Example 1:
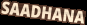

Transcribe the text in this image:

SAADHANA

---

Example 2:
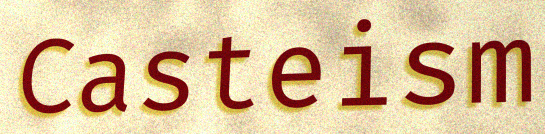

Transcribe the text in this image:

Casteism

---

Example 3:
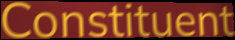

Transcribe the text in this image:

Constituent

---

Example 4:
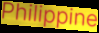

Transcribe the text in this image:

Philippine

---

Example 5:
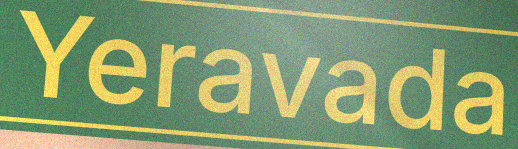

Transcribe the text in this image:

Yeravada